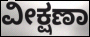
ವೀಕ್ಷಣಾ